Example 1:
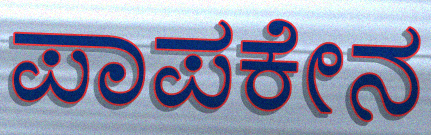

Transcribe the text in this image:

ಪಾಪಕೇನ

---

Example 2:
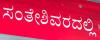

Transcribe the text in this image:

ಸಂತೇಶಿವರದಲ್ಲಿ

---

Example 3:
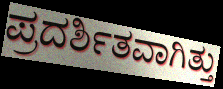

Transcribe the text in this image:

ಪ್ರದರ್ಶಿತವಾಗಿತ್ತು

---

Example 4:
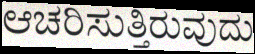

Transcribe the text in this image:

ಆಚರಿಸುತ್ತಿರುವುದು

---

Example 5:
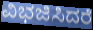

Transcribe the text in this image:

ವಿಭಜಿಸಿದರೆ